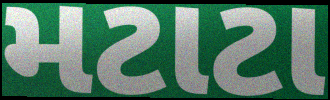
મટાટા